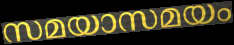
സമയാസമയം